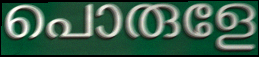
പൊരുളേ